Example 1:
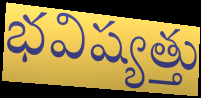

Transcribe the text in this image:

భవిష్యత్తు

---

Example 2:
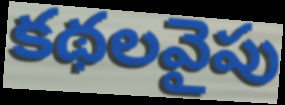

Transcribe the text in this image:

కథలవైపు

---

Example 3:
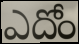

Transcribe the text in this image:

ఎదోం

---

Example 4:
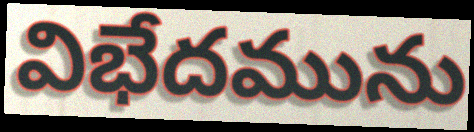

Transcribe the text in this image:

విభేదమును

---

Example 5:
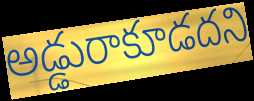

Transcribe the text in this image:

అడ్డురాకూడదని